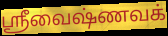
ஸ்ரீவைஷ்ணவக்